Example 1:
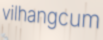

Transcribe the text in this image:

vilhangcum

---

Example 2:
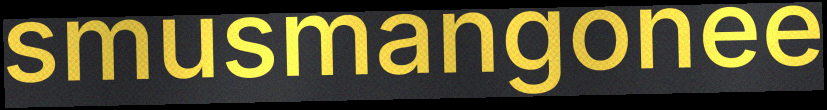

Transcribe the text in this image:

smusmangonee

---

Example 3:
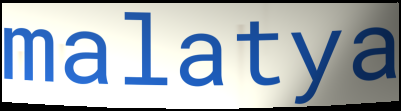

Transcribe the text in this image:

malatya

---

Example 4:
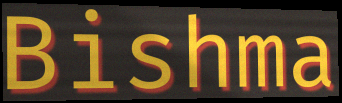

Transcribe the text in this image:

Bishma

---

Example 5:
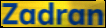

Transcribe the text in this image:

Zadran